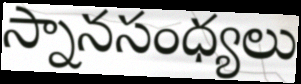
స్నానసంధ్యలు